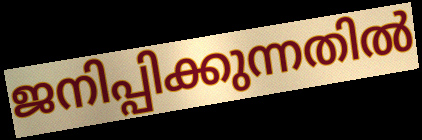
ജനിപ്പിക്കുന്നതിൽ